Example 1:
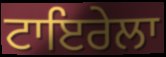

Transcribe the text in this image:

ਟਾਇਰੇਲਾ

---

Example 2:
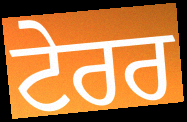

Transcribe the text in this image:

ਟੇਰਰ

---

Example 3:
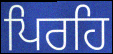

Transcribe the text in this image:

ਪਿਰਹਿ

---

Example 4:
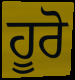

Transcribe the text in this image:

ਹੂਰੋ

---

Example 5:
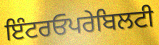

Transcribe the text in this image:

ਇੰਟਰਓਪਰੇਬਿਲਟੀ